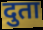
दुता